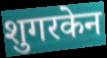
शुगरकेन